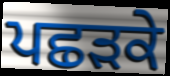
ਪਛੜਕੇ